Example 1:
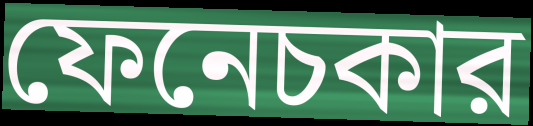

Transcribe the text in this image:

ফেনেচকার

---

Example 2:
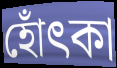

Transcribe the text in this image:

হোঁৎকা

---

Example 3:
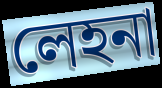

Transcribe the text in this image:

লেহনা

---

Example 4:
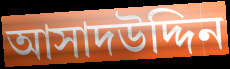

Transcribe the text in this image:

আসাদউদ্দিন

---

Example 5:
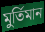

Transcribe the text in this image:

মুর্তিমান